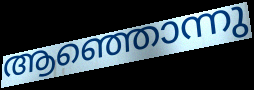
ആഞ്ഞൊന്നു